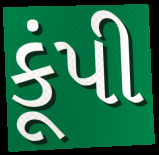
કૂંપી